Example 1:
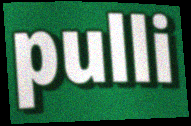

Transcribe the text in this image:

pulli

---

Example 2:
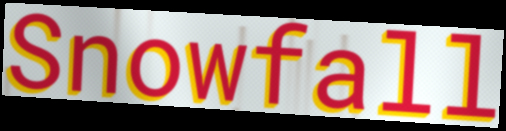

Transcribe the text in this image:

Snowfall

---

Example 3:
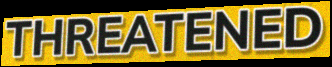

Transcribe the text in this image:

THREATENED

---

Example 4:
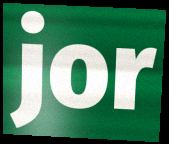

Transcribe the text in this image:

jor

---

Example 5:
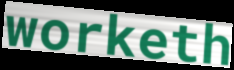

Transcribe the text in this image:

worketh